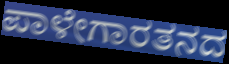
ಪಾಳೇಗಾರತನದ